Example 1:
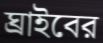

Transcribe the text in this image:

ঘ্রাইবের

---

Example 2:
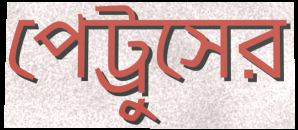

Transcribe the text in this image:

পেট্রুসের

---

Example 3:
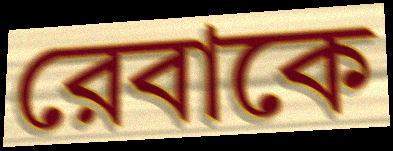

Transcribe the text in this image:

রেবাকে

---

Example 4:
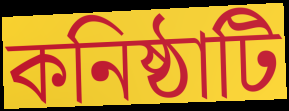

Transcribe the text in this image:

কনিষ্ঠাটি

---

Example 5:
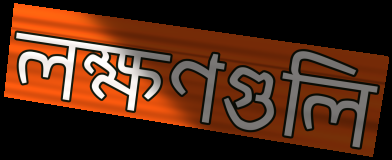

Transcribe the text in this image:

লক্ষণগুলি